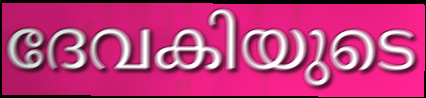
ദേവകിയുടെ